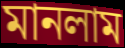
মানলাম